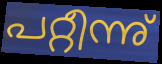
പറ്റീന്നു്